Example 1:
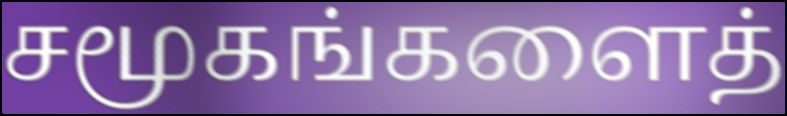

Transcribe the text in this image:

சமூகங்களைத்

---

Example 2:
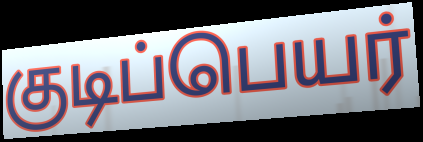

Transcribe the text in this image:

குடிப்பெயர்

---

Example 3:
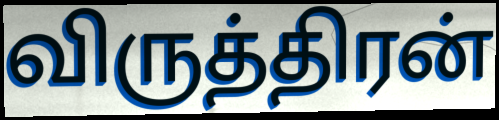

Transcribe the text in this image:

விருத்திரன்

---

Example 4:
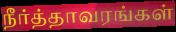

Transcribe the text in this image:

நீர்த்தாவரங்கள்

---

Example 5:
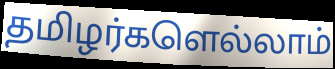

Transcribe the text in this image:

தமிழர்களெல்லாம்